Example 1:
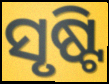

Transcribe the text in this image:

ସୃଷ୍ଟି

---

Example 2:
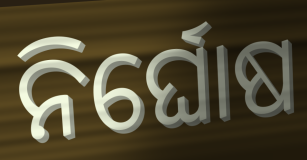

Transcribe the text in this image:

ନିର୍ଘୋଷ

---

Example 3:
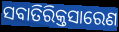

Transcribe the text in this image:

ସବାତିରିକ୍ତସାରେଣ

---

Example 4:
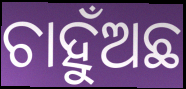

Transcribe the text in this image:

ଚାହୁଁଅଛ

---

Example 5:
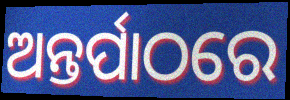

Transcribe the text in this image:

ଅନ୍ତର୍ପାଠରେ